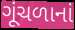
ગૂંચળાનાં